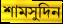
শামসুদিন